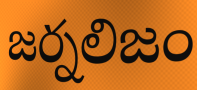
జర్నలిజం